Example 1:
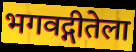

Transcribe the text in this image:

भगवद्गीतेला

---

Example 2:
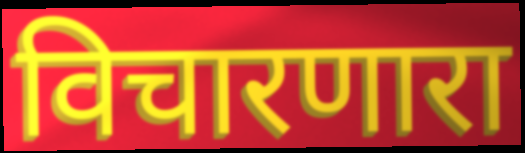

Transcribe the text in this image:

विचारणारा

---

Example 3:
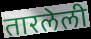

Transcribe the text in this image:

तारलेली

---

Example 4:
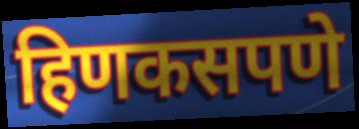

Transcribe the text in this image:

हिणकसपणे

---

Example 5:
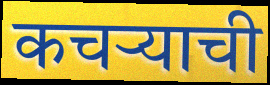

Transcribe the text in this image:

कचर्‍याची